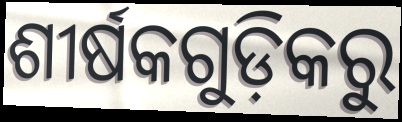
ଶୀର୍ଷକଗୁଡ଼ିକରୁ